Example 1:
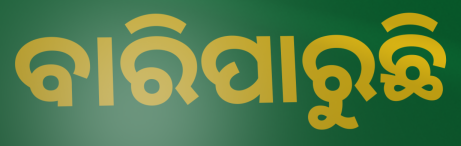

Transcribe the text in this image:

ବାରିପାରୁଛି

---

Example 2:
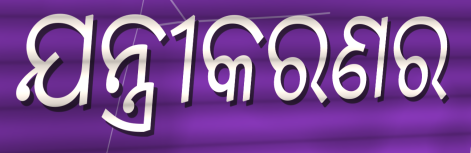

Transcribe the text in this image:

ଯନ୍ତ୍ରୀକରଣର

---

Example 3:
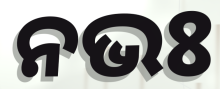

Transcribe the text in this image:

ନଭଃ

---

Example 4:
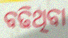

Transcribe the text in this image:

ବଢିଥିବା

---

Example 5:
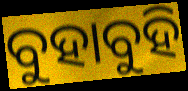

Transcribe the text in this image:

ବୁହାବୁହି